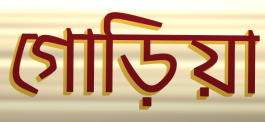
গোড়িয়া